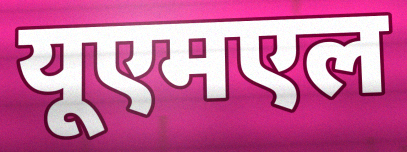
यूएमएल